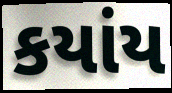
કયાંય